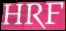
HRF